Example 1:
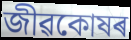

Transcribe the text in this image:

জীৱকোষৰ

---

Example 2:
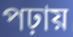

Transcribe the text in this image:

পঢ়ায়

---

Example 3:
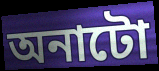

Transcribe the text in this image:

অনাটো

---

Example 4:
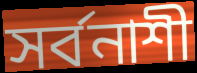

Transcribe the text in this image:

সৰ্বনাশী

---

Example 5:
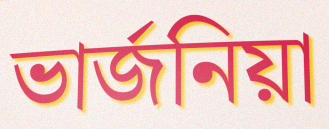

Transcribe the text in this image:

ভাৰ্জনিয়া